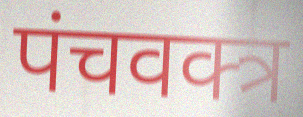
पंचवक्त्र